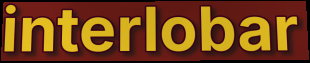
interlobar